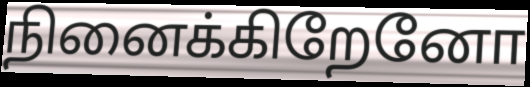
நினைக்கிறேனோ